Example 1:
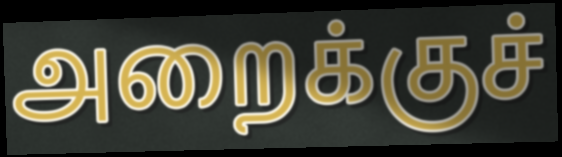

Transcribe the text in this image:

அறைக்குச்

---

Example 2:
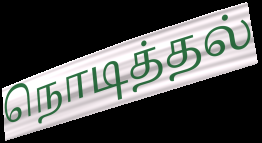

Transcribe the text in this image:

நொடித்தல்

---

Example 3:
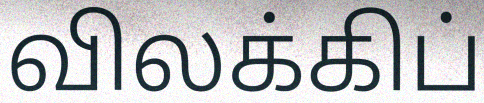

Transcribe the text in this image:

விலக்கிப்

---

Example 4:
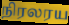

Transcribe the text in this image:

நிரலரய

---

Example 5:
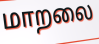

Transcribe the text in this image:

மாறலை